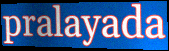
pralayada